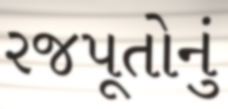
રજપૂતોનું